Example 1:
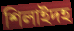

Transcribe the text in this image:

শিলাইদহ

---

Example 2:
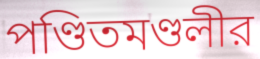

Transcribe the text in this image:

পণ্ডিতমণ্ডলীর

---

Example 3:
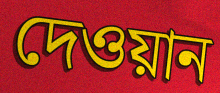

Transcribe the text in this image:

দেওয়ান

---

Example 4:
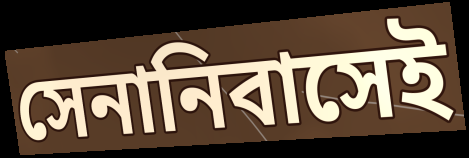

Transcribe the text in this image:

সেনানিবাসেই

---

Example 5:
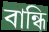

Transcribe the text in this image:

বান্ধি